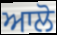
ਆਲੋ